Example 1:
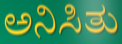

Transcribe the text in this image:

ಅನಿಸಿತು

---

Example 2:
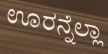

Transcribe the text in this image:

ಊರನ್ನೆಲ್ಲಾ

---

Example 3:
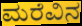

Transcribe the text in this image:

ಮರೆವಿನ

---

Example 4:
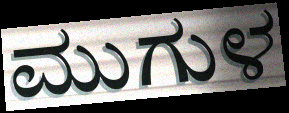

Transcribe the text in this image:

ಮುಗುಳ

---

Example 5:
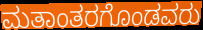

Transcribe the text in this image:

ಮತಾಂತರಗೊಂಡವರು